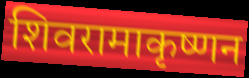
शिवरामाकृष्णन